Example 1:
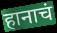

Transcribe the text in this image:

हानाचं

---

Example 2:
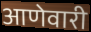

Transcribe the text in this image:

आणेवारी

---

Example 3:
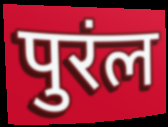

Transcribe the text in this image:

पुरंल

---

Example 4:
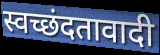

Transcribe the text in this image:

स्वच्छंदतावादी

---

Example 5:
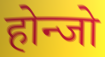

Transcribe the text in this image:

होन्जो